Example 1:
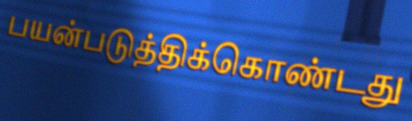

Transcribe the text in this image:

பயன்படுத்திக்கொண்டது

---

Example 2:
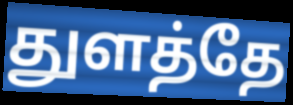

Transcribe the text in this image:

துளத்தே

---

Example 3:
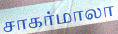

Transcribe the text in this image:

சாகர்மாலா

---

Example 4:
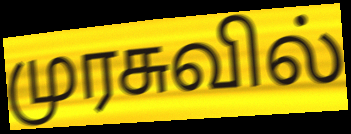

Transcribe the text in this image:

முரசுவில்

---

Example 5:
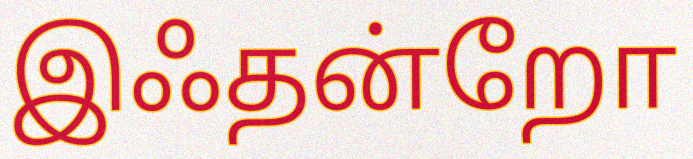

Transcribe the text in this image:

இஃதன்றோ